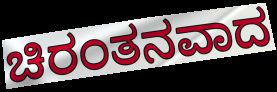
ಚಿರಂತನವಾದ